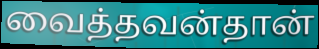
வைத்தவன்தான்